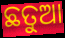
ଛତୁଆ